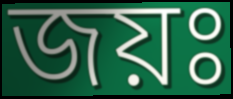
জয়ঃ